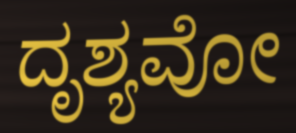
ದೃಶ್ಯವೋ